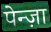
पेन्ज़ा